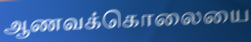
ஆணவக்கொலையை